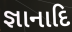
જ્ઞાનાદિ